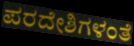
ಪರದೇಶಿಗಳಂತೆ